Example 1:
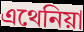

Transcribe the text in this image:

এথেনিয়া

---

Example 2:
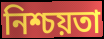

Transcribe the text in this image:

নিশ্চয়তা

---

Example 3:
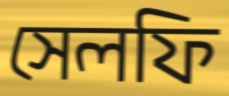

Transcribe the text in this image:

সেলফি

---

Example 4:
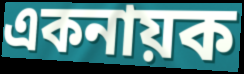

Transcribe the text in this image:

একনায়ক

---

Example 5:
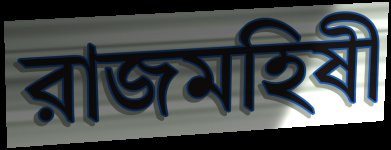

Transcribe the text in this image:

রাজমহিষী